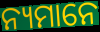
ନ୍ୟମାନେ